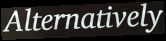
Alternatively